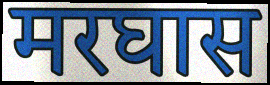
मरघास